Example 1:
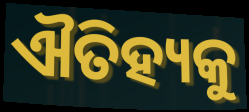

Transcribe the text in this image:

ଐତିହ୍ୟକୁ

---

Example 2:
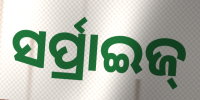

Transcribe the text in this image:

ସର୍ପ୍ରାଇଜ୍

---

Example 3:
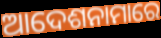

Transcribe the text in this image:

ଆଦେଶନାମାରେ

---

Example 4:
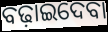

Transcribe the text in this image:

ବଢ଼ାଇଦେବା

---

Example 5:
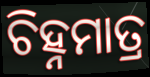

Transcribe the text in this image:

ଚିହ୍ନମାତ୍ର